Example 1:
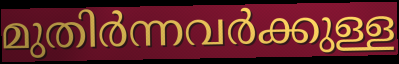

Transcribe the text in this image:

മുതിർന്നവർക്കുള്ള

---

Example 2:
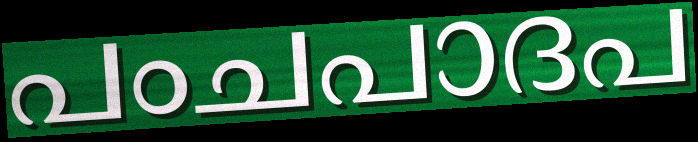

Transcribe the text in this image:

പംചപാദപ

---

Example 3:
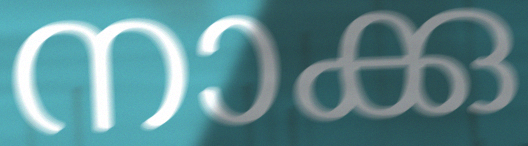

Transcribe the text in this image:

നാക്കു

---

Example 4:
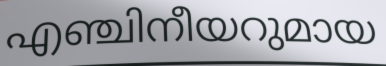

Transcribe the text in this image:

എഞ്ചിനീയറുമായ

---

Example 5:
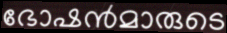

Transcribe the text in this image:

ഭോഷൻമാരുടെ